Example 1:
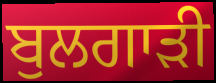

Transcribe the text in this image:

ਬੁਲਗਾੜੀ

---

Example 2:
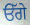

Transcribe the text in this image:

ੳੱਗੇ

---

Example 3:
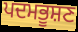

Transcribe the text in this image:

ਪਦਮਭੂਸ਼ਣ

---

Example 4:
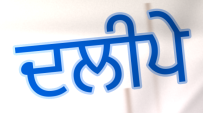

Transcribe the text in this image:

ਦਲੀਪੇ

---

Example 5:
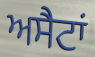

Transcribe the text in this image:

ਅਸੈਟਾਂ